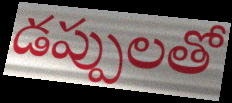
డప్పులతో